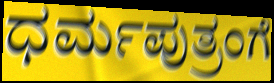
ಧರ್ಮಪುತ್ರಂಗೆ